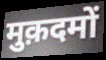
मुक़दमों